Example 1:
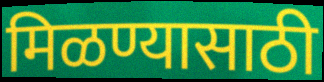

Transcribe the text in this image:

मिळण्यासाठी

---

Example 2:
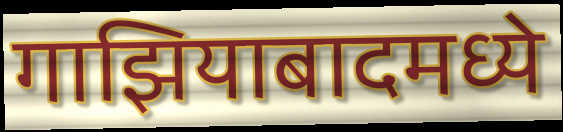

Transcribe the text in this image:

गाझियाबादमध्ये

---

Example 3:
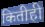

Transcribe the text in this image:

कितीही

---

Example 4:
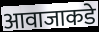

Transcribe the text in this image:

आवाजाकडे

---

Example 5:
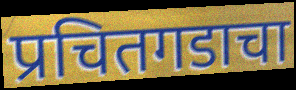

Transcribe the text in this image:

प्रचितगडाचा